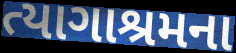
ત્યાગાશ્રમના